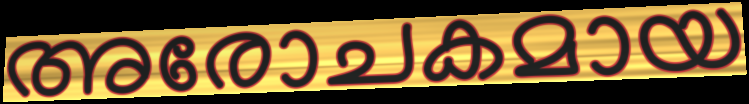
അരോചകമായ